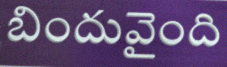
బిందువైంది